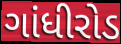
ગાંધીરોડ